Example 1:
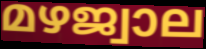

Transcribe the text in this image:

മഴജ്വാല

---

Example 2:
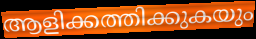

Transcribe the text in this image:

ആളിക്കത്തിക്കുകയും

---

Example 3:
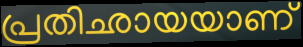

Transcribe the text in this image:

പ്രതിഛായയാണ്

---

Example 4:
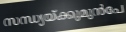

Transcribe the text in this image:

സന്ധ്യയ്ക്കുമുൻപേ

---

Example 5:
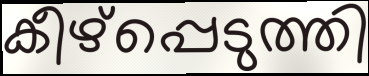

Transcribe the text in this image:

കീഴ്പ്പെടുത്തി